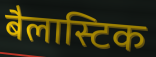
बैलास्टिक